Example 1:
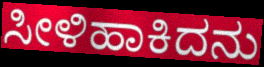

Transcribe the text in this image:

ಸೀಳಿಹಾಕಿದನು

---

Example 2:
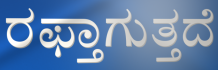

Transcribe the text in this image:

ರಫ್ತಾಗುತ್ತದೆ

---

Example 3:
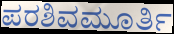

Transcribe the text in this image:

ಪರಶಿವಮೂರ್ತಿ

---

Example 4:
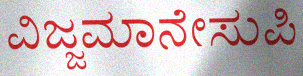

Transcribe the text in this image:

ವಿಜ್ಜಮಾನೇಸುಪಿ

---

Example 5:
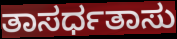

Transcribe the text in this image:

ತಾಸರ್ಧತಾಸು